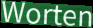
Worten